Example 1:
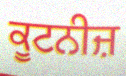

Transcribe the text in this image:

ਕੂਟਨੀਜ਼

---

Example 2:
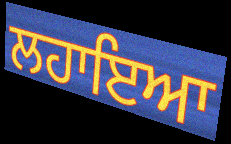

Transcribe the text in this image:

ਲਹਾਇਆ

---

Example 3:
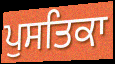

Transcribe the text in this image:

ਪੁਸਤਿਕਾ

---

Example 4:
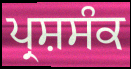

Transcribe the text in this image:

ਪ੍ਰਸ਼ਸੰਕ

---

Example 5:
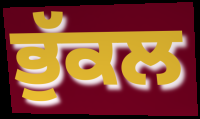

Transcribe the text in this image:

ਭੁੱਕਲ